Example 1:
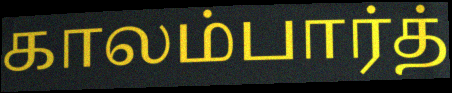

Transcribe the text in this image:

காலம்பார்த்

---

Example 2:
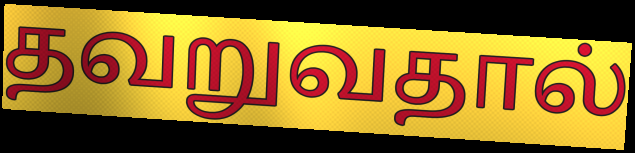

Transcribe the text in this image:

தவறுவதால்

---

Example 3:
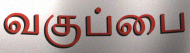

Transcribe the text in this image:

வகுப்பை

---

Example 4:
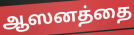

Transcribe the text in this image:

ஆஸனத்தை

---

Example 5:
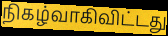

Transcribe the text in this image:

நிகழ்வாகிவிட்டது